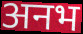
अनभ